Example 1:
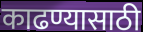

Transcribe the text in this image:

काढण्यासाठी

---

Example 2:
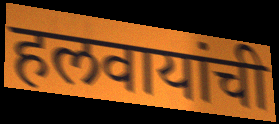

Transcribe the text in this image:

हलवायांची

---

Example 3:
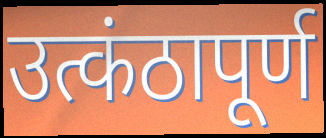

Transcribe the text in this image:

उत्कंठापूर्ण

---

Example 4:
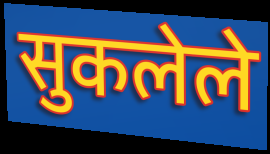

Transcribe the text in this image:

सुकलेले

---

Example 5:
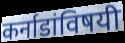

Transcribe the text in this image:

कर्नाडांविषयी